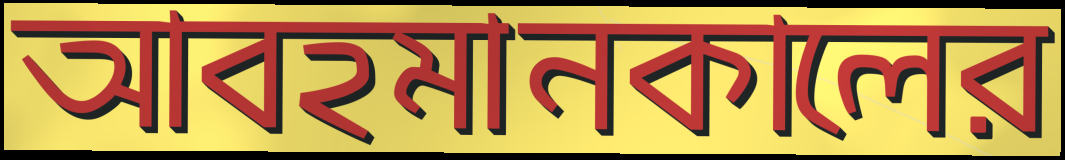
আবহমানকালের